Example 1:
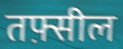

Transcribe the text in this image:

तफ़्सील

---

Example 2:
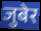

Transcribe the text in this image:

जुबेर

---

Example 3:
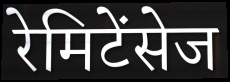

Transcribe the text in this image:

रेमिटेंसेज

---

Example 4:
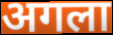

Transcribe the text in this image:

अगला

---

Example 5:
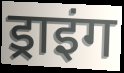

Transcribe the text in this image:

ड्राइंग